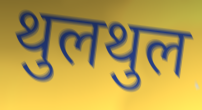
थुलथुल